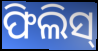
ଫିଲିସ୍